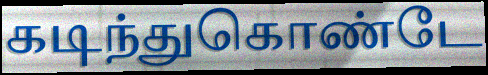
கடிந்துகொண்டே